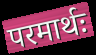
परमार्थः